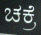
ಚಕ್ರೆ